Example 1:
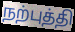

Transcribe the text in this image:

நற்புத்தி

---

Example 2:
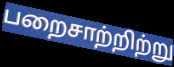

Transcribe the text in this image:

பறைசாற்றிற்று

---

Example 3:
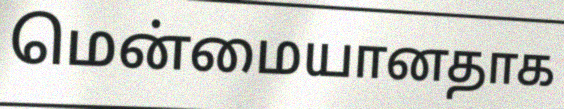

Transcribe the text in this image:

மென்மையானதாக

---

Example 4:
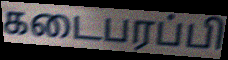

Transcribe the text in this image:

கடைபரப்பி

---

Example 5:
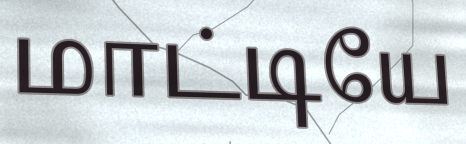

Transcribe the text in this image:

மாட்டியே